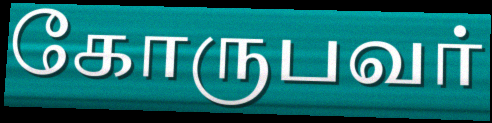
கோருபவர்